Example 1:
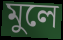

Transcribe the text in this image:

মুলে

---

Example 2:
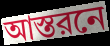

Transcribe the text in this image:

আস্তরনে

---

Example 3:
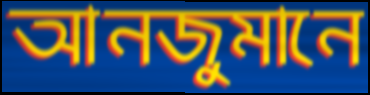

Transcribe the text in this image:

আনজুমানে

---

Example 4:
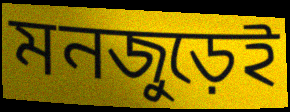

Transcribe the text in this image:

মনজুড়েই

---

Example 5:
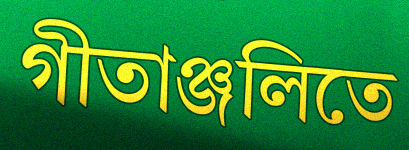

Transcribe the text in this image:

গীতাঞ্জলিতে